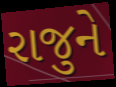
રાજુને